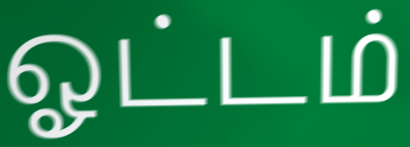
ஓட்டம்